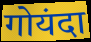
गोयंदा